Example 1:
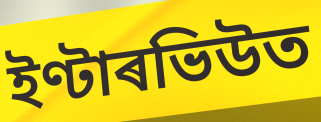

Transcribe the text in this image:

ইণ্টাৰভিউত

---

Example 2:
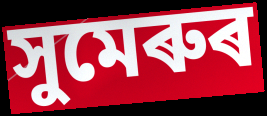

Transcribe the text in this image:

সুমেৰুৰ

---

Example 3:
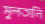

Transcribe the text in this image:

মুলতানি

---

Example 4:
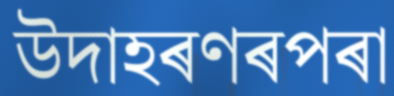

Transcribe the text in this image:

উদাহৰণৰপৰা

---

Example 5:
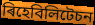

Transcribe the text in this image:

ৰিহেবিলিটেচন